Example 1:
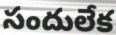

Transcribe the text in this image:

సందులేక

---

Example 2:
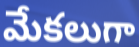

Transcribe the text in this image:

మేకలుగా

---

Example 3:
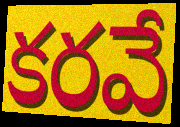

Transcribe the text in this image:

కరవే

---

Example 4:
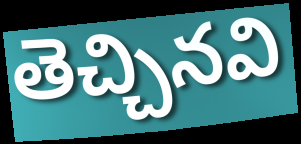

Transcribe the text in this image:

తెచ్చినవి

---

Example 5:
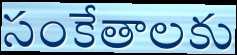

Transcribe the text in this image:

సంకేతాలకు